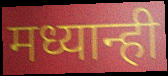
मध्यान्ही